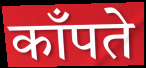
काँपते